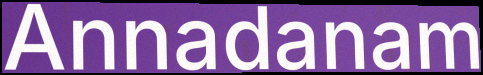
Annadanam